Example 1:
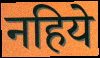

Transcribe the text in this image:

नहिये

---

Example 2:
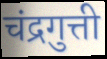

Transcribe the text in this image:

चंद्रगुत्ती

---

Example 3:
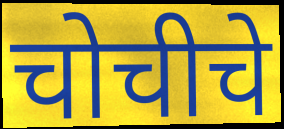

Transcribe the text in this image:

चोचीचे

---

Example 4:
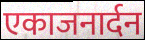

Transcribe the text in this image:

एकाजनार्दन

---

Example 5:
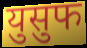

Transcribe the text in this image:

युसुफ